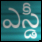
ఎస్డీ